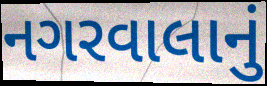
નગરવાલાનું